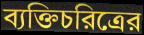
ব্যক্তিচরিত্রের